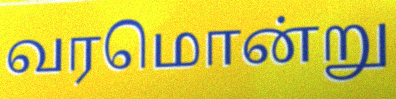
வரமொன்று